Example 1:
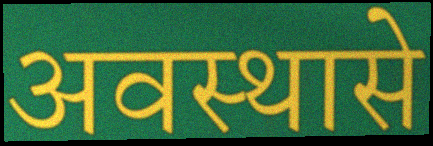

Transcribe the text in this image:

अवस्थासे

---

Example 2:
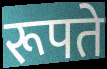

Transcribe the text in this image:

रूपते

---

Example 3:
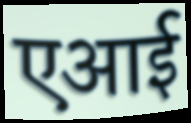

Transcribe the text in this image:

एआई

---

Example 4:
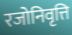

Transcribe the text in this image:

रजोनिवृत्ति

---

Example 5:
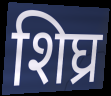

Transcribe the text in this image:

शिघ्र